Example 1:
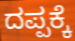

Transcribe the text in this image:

ದಪ್ಪಕ್ಕೆ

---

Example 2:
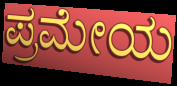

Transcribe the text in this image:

ಪ್ರಮೇಯ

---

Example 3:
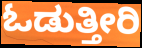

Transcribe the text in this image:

ಓಡುತ್ತೀರಿ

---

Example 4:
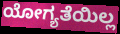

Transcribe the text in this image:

ಯೋಗ್ಯತೆಯಿಲ್ಲ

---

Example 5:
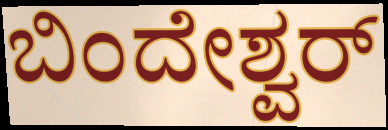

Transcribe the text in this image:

ಬಿಂದೇಶ್ವರ್